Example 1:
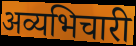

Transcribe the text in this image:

अव्यभिचारी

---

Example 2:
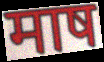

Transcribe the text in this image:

माष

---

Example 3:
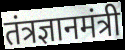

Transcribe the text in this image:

तंत्रज्ञानमंत्री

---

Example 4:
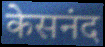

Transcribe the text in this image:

केसनंद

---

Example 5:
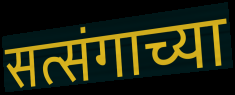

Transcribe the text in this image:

सत्संगाच्या